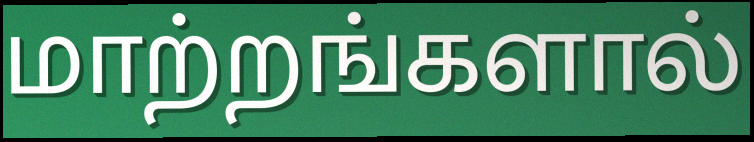
மாற்றங்களால்